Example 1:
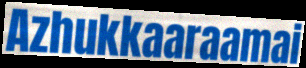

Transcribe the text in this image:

Azhukkaaraamai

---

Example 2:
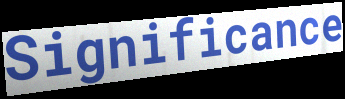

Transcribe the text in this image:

Significance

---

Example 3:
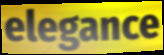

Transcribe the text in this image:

elegance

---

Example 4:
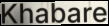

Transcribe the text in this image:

Khabare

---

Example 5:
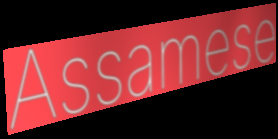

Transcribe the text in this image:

Assamese